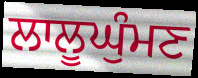
ਲਾਲੂਘੁੰਮਣ